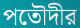
পতৌদীর